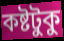
কষ্টটুকু